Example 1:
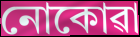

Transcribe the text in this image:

নোকোৱা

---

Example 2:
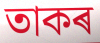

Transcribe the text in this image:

তাকৰ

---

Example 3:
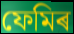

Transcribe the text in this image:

ফেমিৰ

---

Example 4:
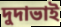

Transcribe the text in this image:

দুদাভাই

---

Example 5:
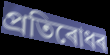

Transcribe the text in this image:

প্ৰতিৰোধৰ